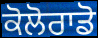
ਕੋਲੋਰਾਡੋ